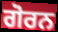
ਗੋਰਨ